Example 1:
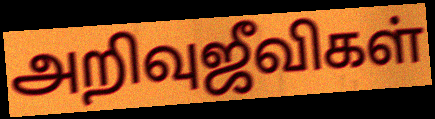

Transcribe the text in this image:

அறிவுஜீவிகள்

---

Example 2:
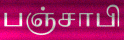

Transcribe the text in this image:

பஞ்சாபி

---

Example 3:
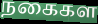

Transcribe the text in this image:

நகைகள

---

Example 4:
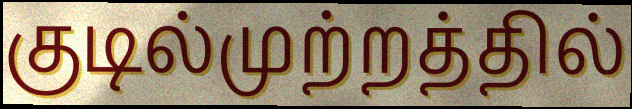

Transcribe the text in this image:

குடில்முற்றத்தில்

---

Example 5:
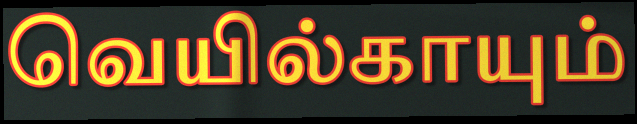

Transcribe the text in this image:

வெயில்காயும்